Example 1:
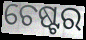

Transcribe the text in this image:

ଚେଷ୍ଟର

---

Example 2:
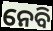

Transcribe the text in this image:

ନେବି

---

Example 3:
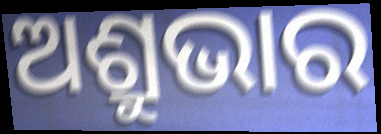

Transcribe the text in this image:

ଅଶ୍ରୁଭାର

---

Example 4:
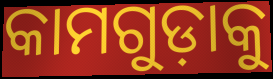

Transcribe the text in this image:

କାମଗୁଡ଼ାକୁ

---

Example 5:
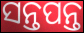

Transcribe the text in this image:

ସନ୍ତପନ୍ତ